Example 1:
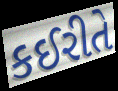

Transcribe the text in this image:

કઈરીતે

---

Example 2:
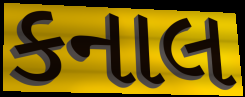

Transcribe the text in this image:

કનાલ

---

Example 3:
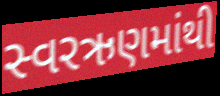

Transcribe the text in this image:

સ્વરઋણમાંથી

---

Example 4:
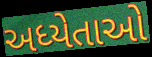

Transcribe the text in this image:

અધ્યેતાઓ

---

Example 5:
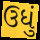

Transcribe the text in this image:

ઉધું